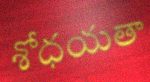
శోధయతా